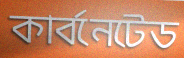
কার্বনেটেড